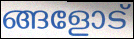
ങ്ങളോട്